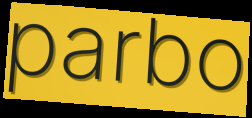
parbo